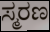
ಸ್ಮರಣ